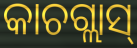
କାଚଗ୍ଲାସ୍